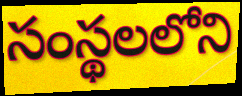
సంస్థలలోని